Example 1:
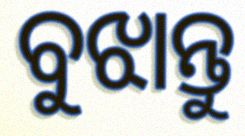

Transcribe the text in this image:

ବୁଝାନ୍ତୁ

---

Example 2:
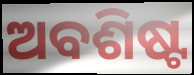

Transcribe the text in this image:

ଅବଶିଷ୍ଟ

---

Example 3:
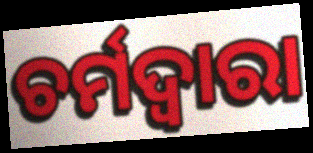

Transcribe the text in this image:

ଚର୍ମଦ୍ଵାରା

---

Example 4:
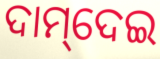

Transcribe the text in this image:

ଦାମ୍‌ଦେଇ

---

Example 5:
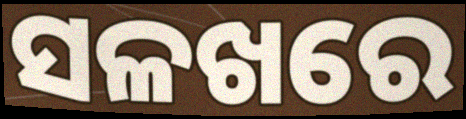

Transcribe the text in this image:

ସଳଖରେ